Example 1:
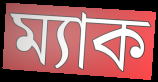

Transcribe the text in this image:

ম্যাক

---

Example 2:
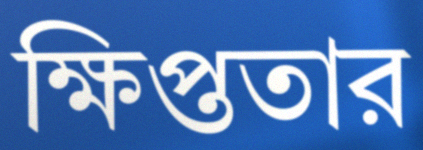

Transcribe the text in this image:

ক্ষিপ্ততার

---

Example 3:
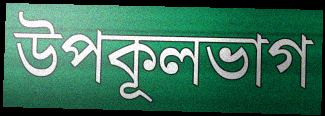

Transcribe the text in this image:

উপকূলভাগ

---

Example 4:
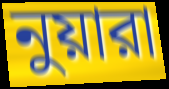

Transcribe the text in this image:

নুয়ারা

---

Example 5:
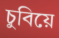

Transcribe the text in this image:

চুবিয়ে